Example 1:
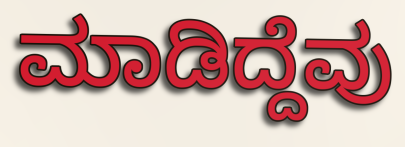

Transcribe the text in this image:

ಮಾಡಿದ್ದೆವು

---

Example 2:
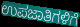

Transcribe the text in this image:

ಉಪಜಾತಿಗಳಿಗೆ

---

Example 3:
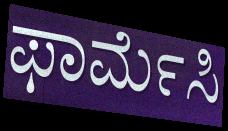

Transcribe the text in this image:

ಫಾರ್ಮೆಸಿ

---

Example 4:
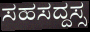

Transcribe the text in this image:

ಸಹಸದ್ದಸ್ಸ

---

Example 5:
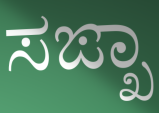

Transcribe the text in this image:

ಸಙ್ಖಾ